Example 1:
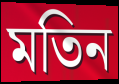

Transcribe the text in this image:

মতিন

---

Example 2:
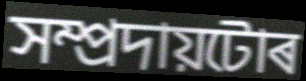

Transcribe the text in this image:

সম্প্ৰদায়টোৰ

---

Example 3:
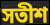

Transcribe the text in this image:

সতীশ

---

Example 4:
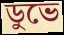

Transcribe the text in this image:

ডুভে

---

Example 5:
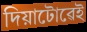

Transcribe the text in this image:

দিয়াটোৱেই